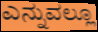
ಎನ್ನುವಲ್ಲೂ